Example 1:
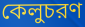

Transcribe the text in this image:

কেলুচরণ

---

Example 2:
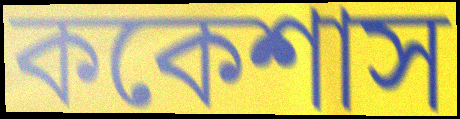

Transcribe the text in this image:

ককেশাস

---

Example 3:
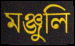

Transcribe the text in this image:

মঞ্জুলি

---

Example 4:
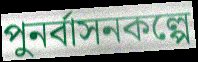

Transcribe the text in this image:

পুনর্বাসনকল্পে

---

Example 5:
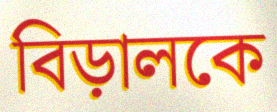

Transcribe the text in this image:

বিড়ালকে